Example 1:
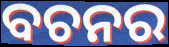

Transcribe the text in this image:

ବଚନର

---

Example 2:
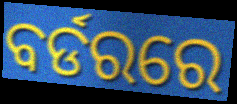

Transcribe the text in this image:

ବର୍ଡରରେ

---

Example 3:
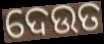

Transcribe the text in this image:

ଦେଉତ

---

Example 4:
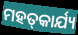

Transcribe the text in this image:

ମହତ୍‌କାର୍ଯ୍ୟ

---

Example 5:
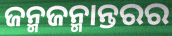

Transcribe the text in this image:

ଜନ୍ମଜନ୍ମାନ୍ତରର